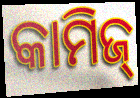
କାମିଜ୍